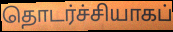
தொடர்ச்சியாகப்